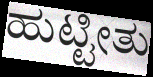
ಹುಟ್ಟೀತು